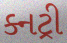
ક્નટ્રી